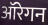
ऑरेगन